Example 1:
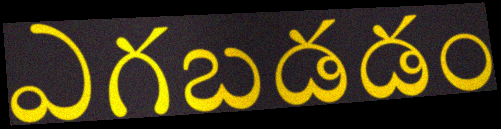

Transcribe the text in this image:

ఎగబడడం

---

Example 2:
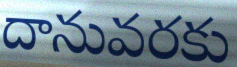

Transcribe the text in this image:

దానువరకు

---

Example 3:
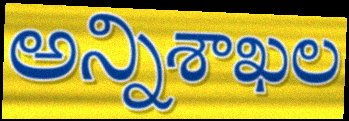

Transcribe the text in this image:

అన్నిశాఖల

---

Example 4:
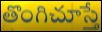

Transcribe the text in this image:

తొంగిచూస్తే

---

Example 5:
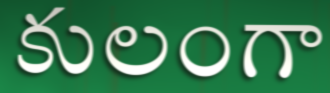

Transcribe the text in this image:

కులంగా